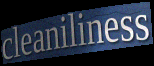
cleaniliness